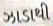
ઝાડાથી